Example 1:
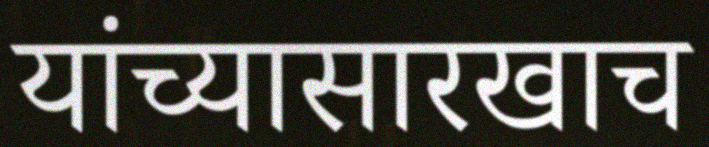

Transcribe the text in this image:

यांच्यासारखाच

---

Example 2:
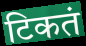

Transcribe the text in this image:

टिकतं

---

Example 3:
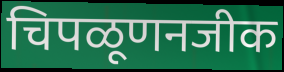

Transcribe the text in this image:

चिपळूणनजीक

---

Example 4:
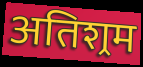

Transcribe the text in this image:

अतिश्रम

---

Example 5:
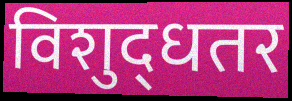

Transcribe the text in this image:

विशुद्धतर